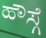
ಹೌಸ್ಗೆ